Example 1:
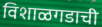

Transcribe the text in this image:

विशाळगडाची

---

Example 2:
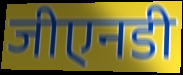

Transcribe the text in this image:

जीएनडी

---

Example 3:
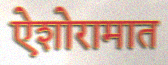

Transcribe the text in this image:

ऐशोरामात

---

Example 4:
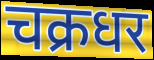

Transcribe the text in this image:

चक्रधर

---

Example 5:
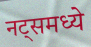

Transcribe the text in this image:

नट्समध्ये